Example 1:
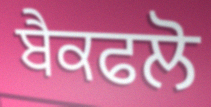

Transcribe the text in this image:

ਬੈਕਫਲੋ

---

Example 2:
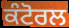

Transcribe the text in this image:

ਕੰਟੋਰਲ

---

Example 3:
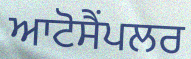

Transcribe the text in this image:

ਆਟੋਸੈਂਪਲਰ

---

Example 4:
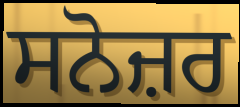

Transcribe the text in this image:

ਸਨੋਜ਼ਰ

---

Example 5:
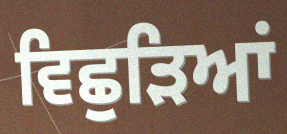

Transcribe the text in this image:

ਵਿਛੁੜਿਆਂ